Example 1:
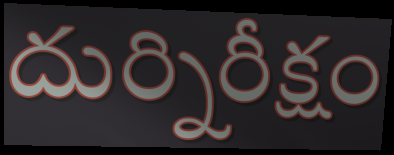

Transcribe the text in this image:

దుర్నిరీక్షం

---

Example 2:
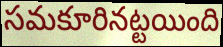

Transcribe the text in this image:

సమకూరినట్టయింది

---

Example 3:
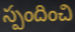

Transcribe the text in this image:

స్పందించి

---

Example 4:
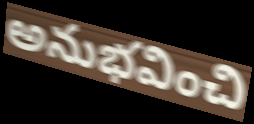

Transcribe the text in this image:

అనుభవించి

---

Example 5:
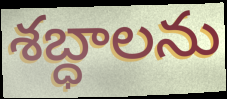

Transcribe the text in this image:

శబ్ధాలను